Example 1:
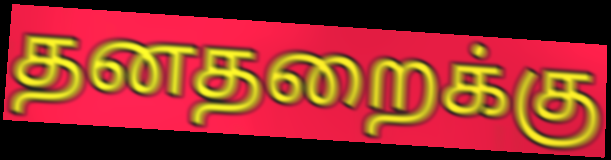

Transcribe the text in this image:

தனதறைக்கு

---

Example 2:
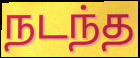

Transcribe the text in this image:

நடந்த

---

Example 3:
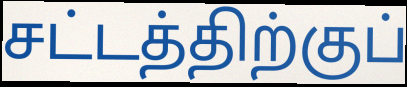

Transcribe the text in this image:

சட்டத்திற்குப்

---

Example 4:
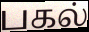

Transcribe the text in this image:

பகல்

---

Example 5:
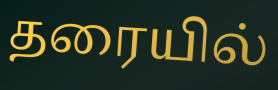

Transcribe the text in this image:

தரையில்